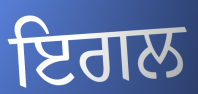
ਇਗਲ